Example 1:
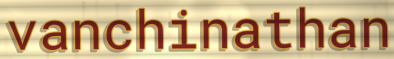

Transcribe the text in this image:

vanchinathan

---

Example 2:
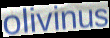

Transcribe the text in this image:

olivinus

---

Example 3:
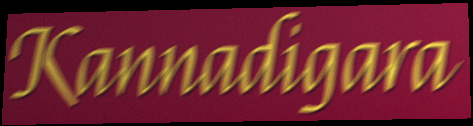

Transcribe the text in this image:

Kannadigara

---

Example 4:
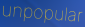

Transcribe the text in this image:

unpopular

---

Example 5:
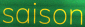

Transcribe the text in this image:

saison